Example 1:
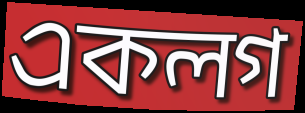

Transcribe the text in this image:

একলগ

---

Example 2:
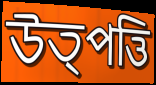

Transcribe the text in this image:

উত্পত্তি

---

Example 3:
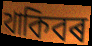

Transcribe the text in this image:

থাকিবৰ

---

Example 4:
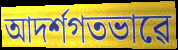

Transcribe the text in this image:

আদৰ্শগতভাৱে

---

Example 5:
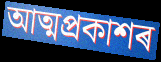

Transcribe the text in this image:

আত্মপ্ৰকাশৰ